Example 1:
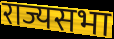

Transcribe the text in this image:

राज्‍यसभा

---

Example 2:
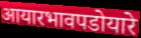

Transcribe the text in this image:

आयारभावपडोयारे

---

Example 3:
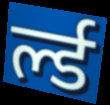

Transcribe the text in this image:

र्ल्ड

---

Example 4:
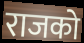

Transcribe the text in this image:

राजको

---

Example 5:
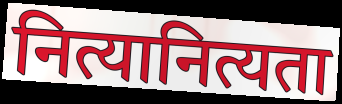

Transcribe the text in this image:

नित्यानित्यता